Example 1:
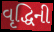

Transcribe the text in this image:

વૃદ્ધિની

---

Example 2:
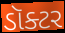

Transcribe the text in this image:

ડૉક્ટર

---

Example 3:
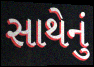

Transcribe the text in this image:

સાથેનું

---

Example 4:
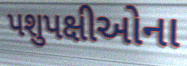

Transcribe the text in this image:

પશુપક્ષીઓના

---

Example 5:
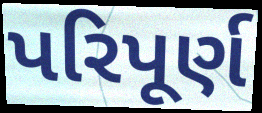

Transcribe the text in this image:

પરિપૂર્ણ